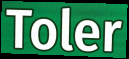
Toler